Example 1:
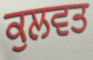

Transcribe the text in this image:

ਕੁਲਵਤ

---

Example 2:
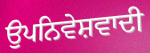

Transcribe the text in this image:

ਉਪਨਿਵੇਸ਼ਵਾਦੀ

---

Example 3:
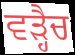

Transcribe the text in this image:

ਵੜ੍ਹੈਚ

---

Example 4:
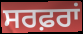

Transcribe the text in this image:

ਸਰਫ਼ਰਾਂ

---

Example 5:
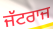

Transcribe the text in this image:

ਜੱਟਰਾਜ